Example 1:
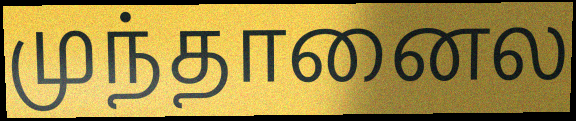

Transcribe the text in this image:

முந்தானைல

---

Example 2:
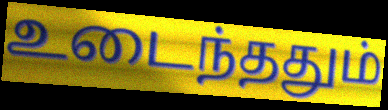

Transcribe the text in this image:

உடைந்ததும்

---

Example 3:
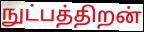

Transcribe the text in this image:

நுட்பத்திறன்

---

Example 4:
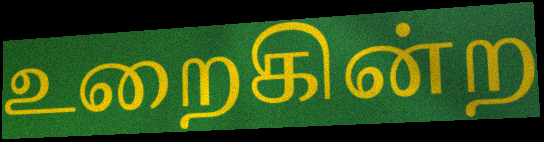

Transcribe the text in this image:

உறைகின்ற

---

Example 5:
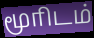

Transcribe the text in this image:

மூரிடம்